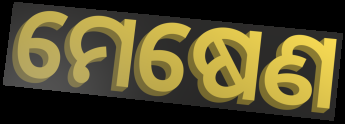
ମେଷେଣ